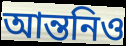
আন্তনিও